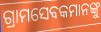
ଗ୍ରାମସେବକମାନଙ୍କୁ